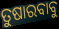
ତୁଷାରବାବୁ